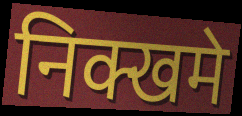
निक्खमे